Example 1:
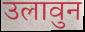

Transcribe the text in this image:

उलावुन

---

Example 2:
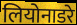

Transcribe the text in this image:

लियोनाडरे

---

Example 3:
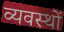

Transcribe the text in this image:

व्यवस्थों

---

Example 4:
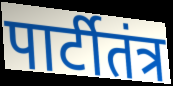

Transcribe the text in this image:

पार्टीतंत्र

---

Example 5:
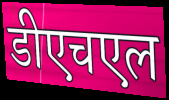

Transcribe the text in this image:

डीएचएल